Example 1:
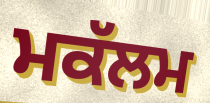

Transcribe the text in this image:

ਮਕੱਲਮ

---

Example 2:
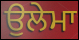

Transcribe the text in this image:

ਉਲੇਮਾ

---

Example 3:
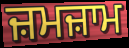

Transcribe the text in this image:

ਜ਼ਮਜ਼ਾਮ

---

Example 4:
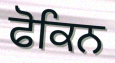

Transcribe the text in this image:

ਫੋਕਿਨ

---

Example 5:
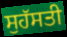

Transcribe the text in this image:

ਸੁਹੱਸਤੀ